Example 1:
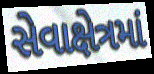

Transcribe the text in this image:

સેવાક્ષેત્રમાં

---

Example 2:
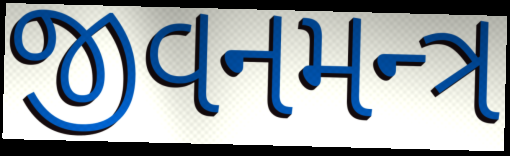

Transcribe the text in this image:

જીવનમન્ત્ર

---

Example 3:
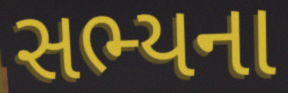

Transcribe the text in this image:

સભ્યના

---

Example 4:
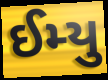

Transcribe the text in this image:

ઈમ્યુ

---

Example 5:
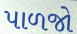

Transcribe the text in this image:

પાળજો